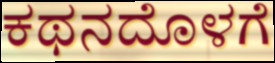
ಕಥನದೊಳಗೆ